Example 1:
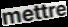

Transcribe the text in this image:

mettre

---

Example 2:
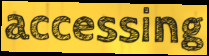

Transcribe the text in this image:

accessing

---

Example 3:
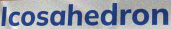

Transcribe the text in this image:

Icosahedron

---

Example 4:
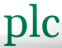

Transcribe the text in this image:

plc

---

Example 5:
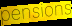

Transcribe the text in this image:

pensions